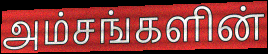
அம்சங்களின்